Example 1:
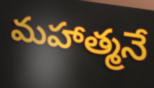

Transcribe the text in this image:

మహాత్మనే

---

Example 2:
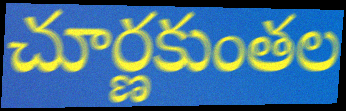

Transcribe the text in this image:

చూర్ణకుంతల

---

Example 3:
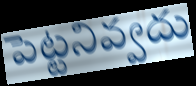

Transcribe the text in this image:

పెట్టనివ్వదు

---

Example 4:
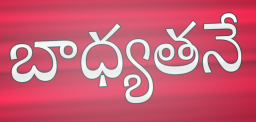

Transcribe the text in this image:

బాధ్యతనే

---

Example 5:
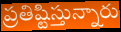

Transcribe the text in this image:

ప్రతిష్టిస్తున్నారు